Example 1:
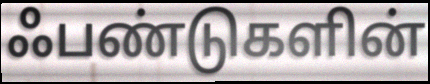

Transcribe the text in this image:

ஃபண்டுகளின்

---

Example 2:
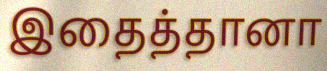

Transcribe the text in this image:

இதைத்தானா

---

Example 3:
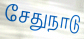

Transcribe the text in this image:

சேதுநாடு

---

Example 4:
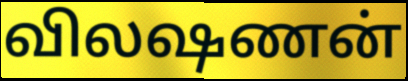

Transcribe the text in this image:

விலஷணன்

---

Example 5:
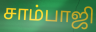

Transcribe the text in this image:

சாம்பாஜி